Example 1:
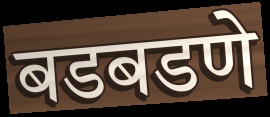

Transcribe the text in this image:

बडबडणे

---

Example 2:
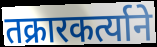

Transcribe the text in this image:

तक्रारकर्त्याने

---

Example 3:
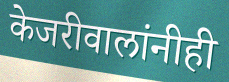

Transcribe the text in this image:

केजरीवालांनीही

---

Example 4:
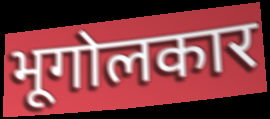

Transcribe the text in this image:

भूगोलकार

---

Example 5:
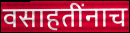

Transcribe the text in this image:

वसाहतींनाच